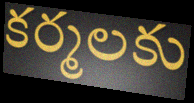
కర్మలకు